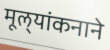
मूल्यांकनाने